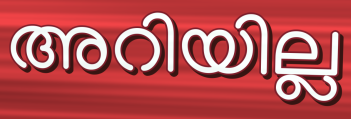
അറിയില്ല